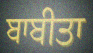
ਬਾਬੀਤਾ